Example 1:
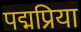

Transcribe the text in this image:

पद्मप्रिया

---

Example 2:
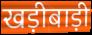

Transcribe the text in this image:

खड़ीबाड़ी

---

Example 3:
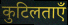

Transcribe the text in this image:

कुटिलताएँ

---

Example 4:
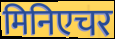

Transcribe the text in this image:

मिनिएचर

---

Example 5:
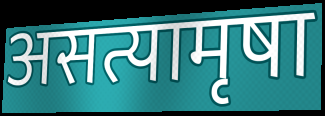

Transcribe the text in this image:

असत्यामृषा